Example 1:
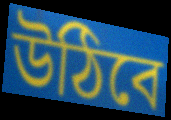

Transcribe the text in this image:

উঠিবে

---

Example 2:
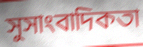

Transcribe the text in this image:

সুসাংবাদিকতা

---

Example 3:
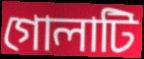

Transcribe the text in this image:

গোলাটি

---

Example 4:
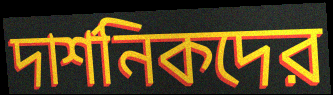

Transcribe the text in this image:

দার্শনিকদের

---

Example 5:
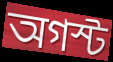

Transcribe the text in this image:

অগস্ট